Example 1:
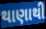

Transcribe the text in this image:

થાણાથી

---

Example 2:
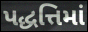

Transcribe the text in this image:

પદ્ધત્તિમાં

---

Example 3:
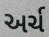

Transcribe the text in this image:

અર્ચ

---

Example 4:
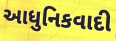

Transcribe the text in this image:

આધુનિકવાદી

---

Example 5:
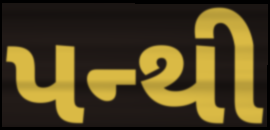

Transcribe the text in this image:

પન્થી